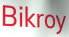
Bikroy